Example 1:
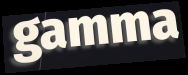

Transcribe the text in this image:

gamma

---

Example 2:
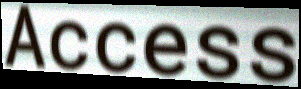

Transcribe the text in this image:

Access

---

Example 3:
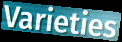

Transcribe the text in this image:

Varieties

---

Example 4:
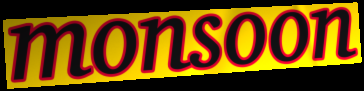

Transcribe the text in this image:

monsoon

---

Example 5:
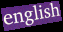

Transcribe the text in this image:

english